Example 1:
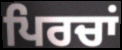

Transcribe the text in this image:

ਪਿਰਚਾਂ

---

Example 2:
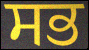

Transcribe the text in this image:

ਸਭ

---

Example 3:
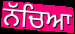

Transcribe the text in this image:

ਨੱਚਿਆ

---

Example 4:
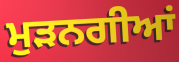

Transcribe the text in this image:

ਮੁੜਨਗੀਆਂ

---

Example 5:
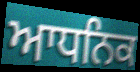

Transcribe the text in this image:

ਆਧਨਿਕ